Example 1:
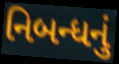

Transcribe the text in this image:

નિબન્ધનું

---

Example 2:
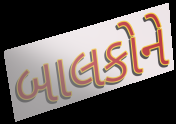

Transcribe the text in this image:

બાલકોને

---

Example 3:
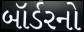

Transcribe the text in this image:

બૉર્ડરનો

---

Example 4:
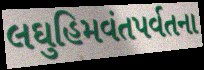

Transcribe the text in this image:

લઘુહિમવંતપર્વતના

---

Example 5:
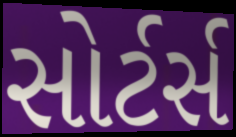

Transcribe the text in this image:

સોર્ટર્સ